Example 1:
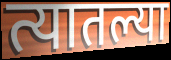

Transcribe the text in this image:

त्यातल्या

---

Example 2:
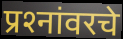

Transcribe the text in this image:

प्रश्नांवरचे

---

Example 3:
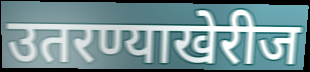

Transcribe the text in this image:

उतरण्याखेरीज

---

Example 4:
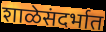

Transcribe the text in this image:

शाळेसंदर्भात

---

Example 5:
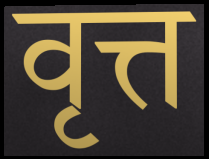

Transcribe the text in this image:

वृत्त